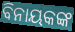
ବିନାୟକଙ୍କ